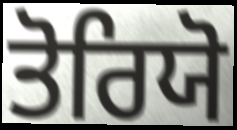
ਤੋਰਿਯੋ